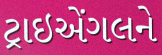
ટ્રાઇએંગલને